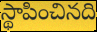
స్థాపించినది